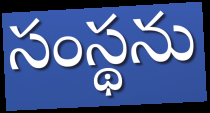
సంస్థను